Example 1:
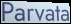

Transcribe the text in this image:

Parvata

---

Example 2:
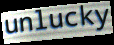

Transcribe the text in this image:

unlucky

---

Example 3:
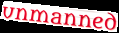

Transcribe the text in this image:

unmanned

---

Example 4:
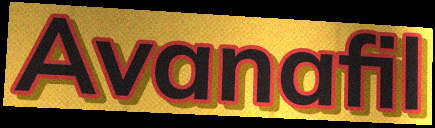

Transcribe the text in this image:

Avanafil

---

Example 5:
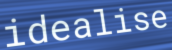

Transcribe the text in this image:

idealise